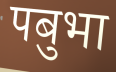
पबुभा